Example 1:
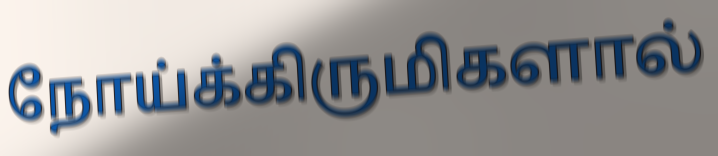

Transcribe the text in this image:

நோய்க்கிருமிகளால்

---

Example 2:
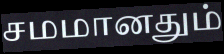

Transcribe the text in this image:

சமமானதும்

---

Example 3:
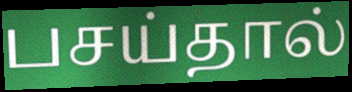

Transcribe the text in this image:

பசய்தால்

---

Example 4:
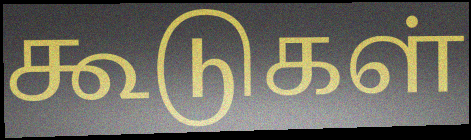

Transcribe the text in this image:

கூடுகள்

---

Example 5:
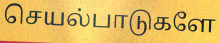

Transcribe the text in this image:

செயல்பாடுகளே